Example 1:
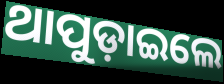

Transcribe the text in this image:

ଥାପୁଡ଼ାଇଲେ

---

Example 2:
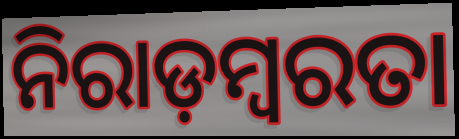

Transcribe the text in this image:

ନିରାଡ଼ମ୍ବରତା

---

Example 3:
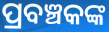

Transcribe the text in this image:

ପ୍ରବଞ୍ଚକଙ୍କ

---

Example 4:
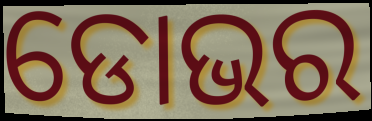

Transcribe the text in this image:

ଡୋଭର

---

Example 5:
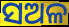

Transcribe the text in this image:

ସଅଳ